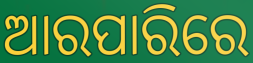
ଆରପାରିରେ